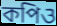
কপিও